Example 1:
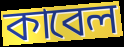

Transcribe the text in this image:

কাবেল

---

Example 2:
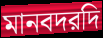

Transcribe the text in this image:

মানবদরদি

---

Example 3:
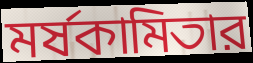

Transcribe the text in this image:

মর্ষকামিতার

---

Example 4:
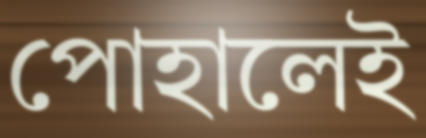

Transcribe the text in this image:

পোহালেই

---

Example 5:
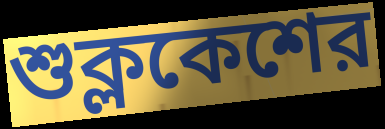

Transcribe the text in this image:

শুক্লকেশের